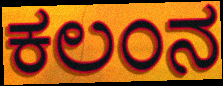
ಕಲಂನ